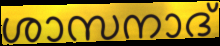
ശാസനാദ്